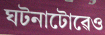
ঘটনাটোৱেও